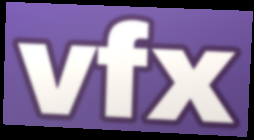
vfx